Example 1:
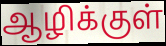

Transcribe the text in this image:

ஆழிக்குள்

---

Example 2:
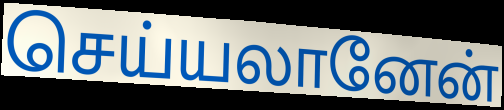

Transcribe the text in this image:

செய்யலானேன்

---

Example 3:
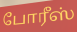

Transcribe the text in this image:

போரீஸ்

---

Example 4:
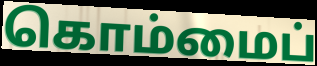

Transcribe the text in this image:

கொம்மைப்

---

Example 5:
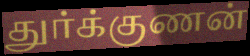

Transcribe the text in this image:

துர்க்குணன்